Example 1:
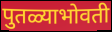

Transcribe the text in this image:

पुतळ्याभोवती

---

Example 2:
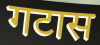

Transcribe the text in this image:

गटास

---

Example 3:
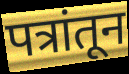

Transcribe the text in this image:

पत्रांतून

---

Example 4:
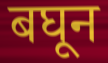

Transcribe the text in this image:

बघून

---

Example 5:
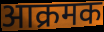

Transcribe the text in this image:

आक्रमक